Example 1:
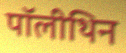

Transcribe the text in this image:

पॉलीथिन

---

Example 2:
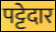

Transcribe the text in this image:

पट्टेदार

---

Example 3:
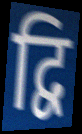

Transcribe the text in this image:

द्वि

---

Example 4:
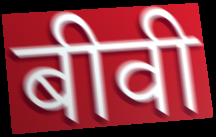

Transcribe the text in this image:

बीवी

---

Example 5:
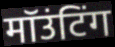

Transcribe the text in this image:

मॉउंटिंग